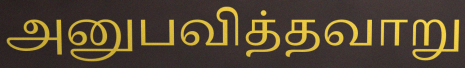
அனுபவித்தவாறு